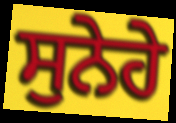
ਸੁਨੇਹੇ